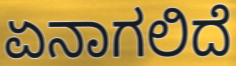
ಏನಾಗಲಿದೆ